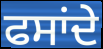
ਫਸਾਂਦੇ